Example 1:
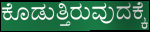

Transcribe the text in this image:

ಕೊಡುತ್ತಿರುವುದಕ್ಕೆ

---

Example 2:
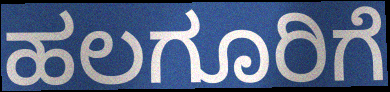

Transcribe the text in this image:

ಹಲಗೂರಿಗೆ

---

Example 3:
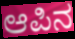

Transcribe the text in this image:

ಆಪಿನ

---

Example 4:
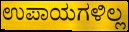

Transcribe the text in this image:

ಉಪಾಯಗಳಿಲ್ಲ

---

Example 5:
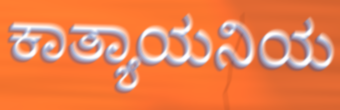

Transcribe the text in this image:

ಕಾತ್ಯಾಯನಿಯ